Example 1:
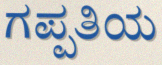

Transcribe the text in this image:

ಗಪ್ಪತಿಯ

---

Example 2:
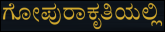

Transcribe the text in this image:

ಗೋಪುರಾಕೃತಿಯಲ್ಲಿ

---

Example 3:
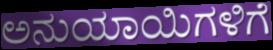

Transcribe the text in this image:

ಅನುಯಾಯಿಗಳಿಗೆ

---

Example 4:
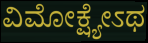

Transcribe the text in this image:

ವಿಮೋಕ್ಷ್ಯೇಽಥ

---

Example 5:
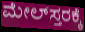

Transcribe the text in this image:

ಮೇಲ್‌ಸ್ತರಕ್ಕೆ